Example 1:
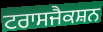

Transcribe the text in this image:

ਟਰਾਸਜੈਕਸ਼ਨ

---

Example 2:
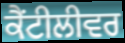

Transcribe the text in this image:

ਕੈਂਟੀਲੀਵਰ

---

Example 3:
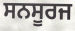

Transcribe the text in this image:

ਸਨਸੂਰਜ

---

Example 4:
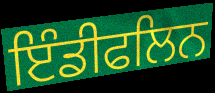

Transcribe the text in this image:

ਇੰਡੀਫਲਿਨ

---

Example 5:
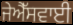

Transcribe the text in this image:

ਜੇਐੱਸਵਾਈ